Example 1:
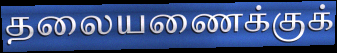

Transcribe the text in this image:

தலையணைக்குக்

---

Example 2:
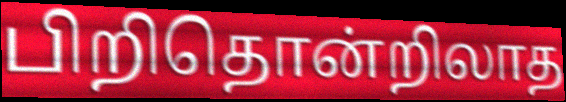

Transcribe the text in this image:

பிறிதொன்றிலாத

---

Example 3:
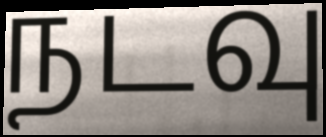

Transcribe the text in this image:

நடவு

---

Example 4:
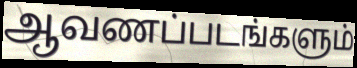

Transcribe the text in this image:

ஆவணப்படங்களும்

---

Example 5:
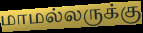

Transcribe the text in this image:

மாமல்லருக்கு